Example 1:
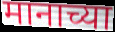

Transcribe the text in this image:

मानाच्या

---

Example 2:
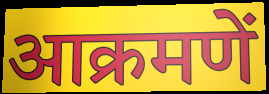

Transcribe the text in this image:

आक्रमणें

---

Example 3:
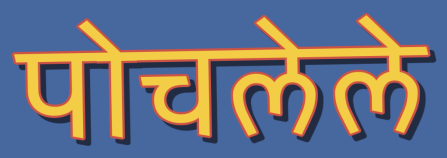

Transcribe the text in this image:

पोचलेले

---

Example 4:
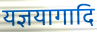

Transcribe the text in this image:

यज्ञयागादि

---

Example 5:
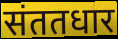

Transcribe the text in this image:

संततधार